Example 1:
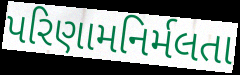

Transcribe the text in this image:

પરિણામનિર્મલતા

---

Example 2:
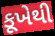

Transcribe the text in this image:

કૂખેથી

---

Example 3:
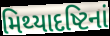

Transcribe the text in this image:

મિથ્યાદષ્ટિનાં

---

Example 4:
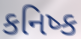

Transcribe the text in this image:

કનિષ્ક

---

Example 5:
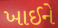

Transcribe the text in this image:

ખાઈને